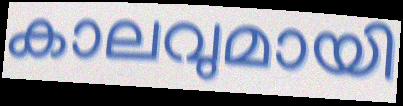
കാലവുമായി